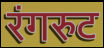
रंगरुट